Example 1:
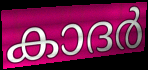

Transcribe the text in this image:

കാദർ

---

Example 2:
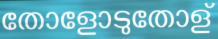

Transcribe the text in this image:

തോളോടുതോള്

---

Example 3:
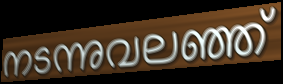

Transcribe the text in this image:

നടന്നുവലഞ്ഞ്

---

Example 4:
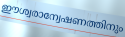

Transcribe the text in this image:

ഈശ്വരാന്വേഷണത്തിനും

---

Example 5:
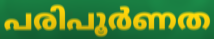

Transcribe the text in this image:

പരിപൂർണത